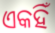
ଏକହିଁ